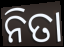
ନିତା